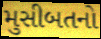
મુસીબતનો